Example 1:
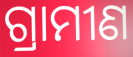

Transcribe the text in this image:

ଗ୍ରାମୀଣ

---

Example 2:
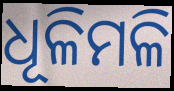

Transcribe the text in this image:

ଧୂଳିମଳି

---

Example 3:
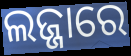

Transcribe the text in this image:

ଲଜ୍ଜାରେ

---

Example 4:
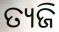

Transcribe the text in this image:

ତ୍ୟଜି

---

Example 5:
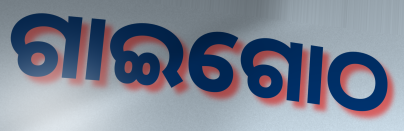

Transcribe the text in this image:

ଗାଇଗୋଠ